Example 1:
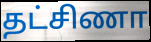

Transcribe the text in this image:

தட்சிணா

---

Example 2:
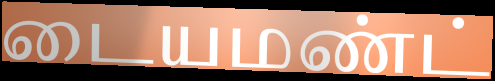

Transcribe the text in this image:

டையமண்ட்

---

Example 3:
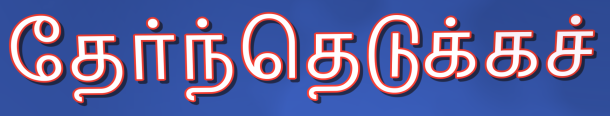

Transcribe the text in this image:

தேர்ந்தெடுக்கச்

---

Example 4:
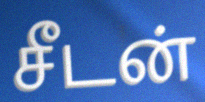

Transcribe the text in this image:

சீடன்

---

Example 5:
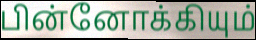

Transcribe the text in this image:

பின்னோக்கியும்